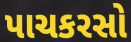
પાચકરસો